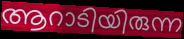
ആറാടിയിരുന്ന